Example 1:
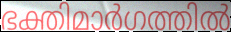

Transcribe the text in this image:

ഭക്തിമാർഗത്തിൽ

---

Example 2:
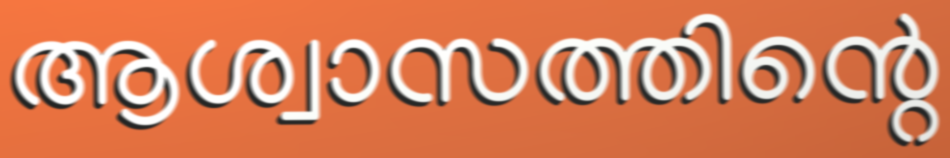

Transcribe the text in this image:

ആശ്വാസത്തിന്റെ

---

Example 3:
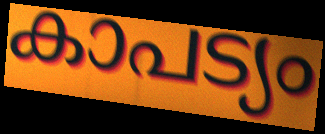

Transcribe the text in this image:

കാപട്യം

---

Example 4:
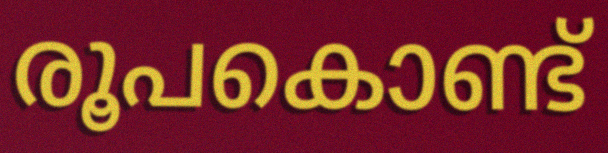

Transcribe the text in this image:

രൂപകൊണ്ട്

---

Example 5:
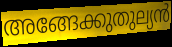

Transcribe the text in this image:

അങ്ങേക്കുതുല്യൻ